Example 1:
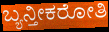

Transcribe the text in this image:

ಬ್ಯನ್ತೀಕರೋತಿ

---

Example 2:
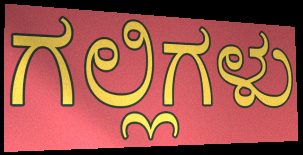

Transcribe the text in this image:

ಗಲ್ಲಿಗಳು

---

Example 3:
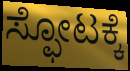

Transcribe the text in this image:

ಸ್ಫೋಟಕ್ಕೆ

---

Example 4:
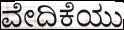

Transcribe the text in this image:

ವೇದಿಕೆಯು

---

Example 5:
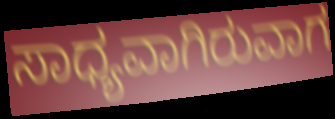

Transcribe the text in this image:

ಸಾಧ್ಯವಾಗಿರುವಾಗ